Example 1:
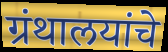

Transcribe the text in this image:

ग्रंथालयांचे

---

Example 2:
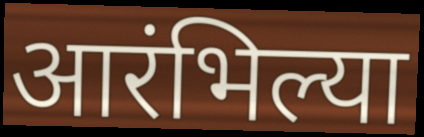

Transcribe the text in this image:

आरंभिल्या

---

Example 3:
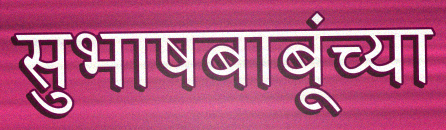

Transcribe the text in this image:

सुभाषबाबूंच्या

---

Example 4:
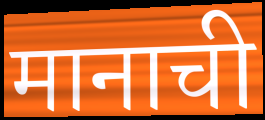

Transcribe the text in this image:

मानाची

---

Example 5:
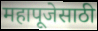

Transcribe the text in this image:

महापूजेसाठी